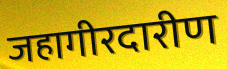
जहागीरदारीण